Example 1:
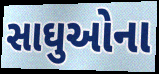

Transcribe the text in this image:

સાઘુઓના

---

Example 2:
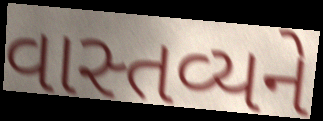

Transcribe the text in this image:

વાસ્તવ્યને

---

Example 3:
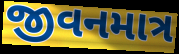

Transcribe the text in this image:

જીવનમાત્ર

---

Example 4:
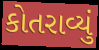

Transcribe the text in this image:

કોતરાવ્યું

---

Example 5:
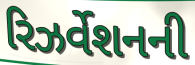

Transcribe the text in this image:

રિઝર્વેશનની